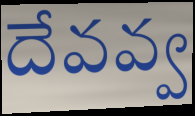
దేవవ్వ